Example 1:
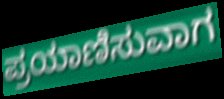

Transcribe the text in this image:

ಪ್ರಯಾಣಿಸುವಾಗ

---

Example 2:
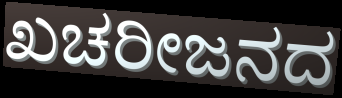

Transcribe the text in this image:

ಖಚರೀಜನದ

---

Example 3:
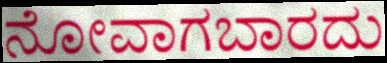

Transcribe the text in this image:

ನೋವಾಗಬಾರದು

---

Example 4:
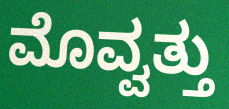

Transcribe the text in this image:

ಮೊವ್ವತ್ತು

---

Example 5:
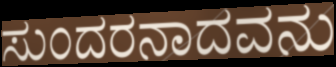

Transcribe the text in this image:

ಸುಂದರನಾದವನು